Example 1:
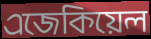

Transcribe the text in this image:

এজেকিয়েল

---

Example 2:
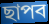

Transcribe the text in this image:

ছাপব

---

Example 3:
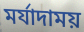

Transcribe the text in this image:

মর্যাদাময়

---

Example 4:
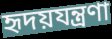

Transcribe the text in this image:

হৃদয়যন্ত্রণা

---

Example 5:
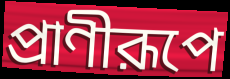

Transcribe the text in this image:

প্রাণীরূপে